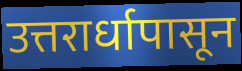
उत्तरार्धापासून